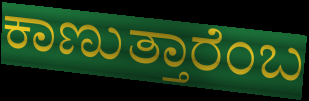
ಕಾಣುತ್ತಾರೆಂಬ